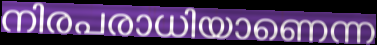
നിരപരാധിയാണെന്ന